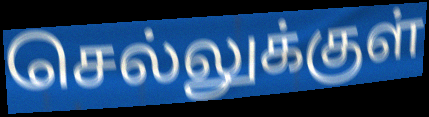
செல்லுக்குள்